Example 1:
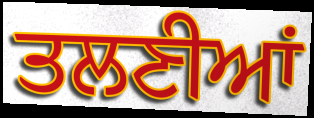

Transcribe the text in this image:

ਤਲਣੀਆਂ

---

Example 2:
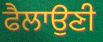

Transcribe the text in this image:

ਫੈਲਾਉਣੀ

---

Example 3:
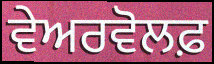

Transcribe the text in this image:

ਵੇਅਰਵੋਲਫ਼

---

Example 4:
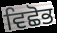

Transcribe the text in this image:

ਵਿਛੋਭ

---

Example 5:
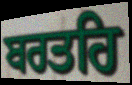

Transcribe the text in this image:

ਬਰਤਹਿ